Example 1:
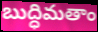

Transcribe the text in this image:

బుద్ధిమతాం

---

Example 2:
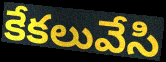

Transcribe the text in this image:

కేకలువేసి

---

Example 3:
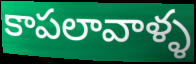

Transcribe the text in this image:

కాపలావాళ్ళ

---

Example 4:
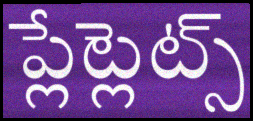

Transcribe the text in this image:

ప్లేట్లెట్స్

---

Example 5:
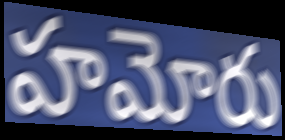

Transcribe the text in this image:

హమోరు